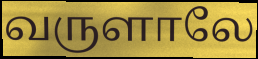
வருளாலே